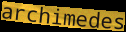
archimedes